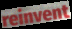
reinvent